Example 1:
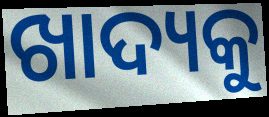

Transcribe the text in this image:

ଖାଦ୍ୟକୁ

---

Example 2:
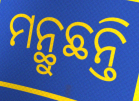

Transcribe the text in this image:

ମନ୍ଥୁଛନ୍ତି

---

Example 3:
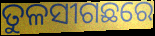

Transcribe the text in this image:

ତୁଳସୀଗଛରେ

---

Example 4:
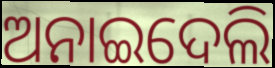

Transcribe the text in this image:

ଅନାଇଦେଲି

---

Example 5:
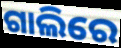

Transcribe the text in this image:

ଗାଲିରେ